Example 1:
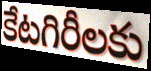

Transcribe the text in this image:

కేటగిరీలకు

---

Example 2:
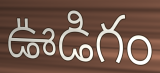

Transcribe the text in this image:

ఊడిగం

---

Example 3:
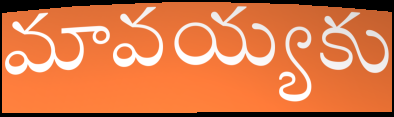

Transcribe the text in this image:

మావయ్యకు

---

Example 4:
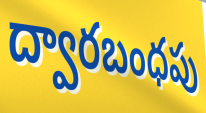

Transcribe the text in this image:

ద్వారబంధపు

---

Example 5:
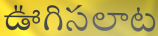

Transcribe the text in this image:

ఊగిసలాట